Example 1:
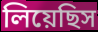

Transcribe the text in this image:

লিয়েছিস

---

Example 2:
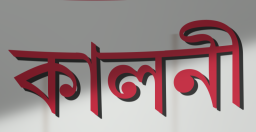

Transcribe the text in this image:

কালনী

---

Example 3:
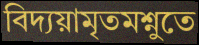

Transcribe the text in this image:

বিদ্যয়ামৃতমশ্নুতে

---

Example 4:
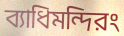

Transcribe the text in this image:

ব্যাধিমন্দিরং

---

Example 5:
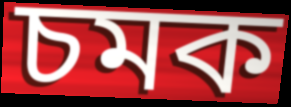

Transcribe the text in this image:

চমক